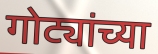
गोट्यांच्या